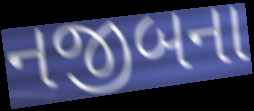
નજીબના